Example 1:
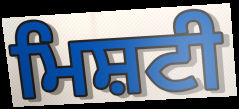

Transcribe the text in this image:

ਮਿਸ਼ਟੀ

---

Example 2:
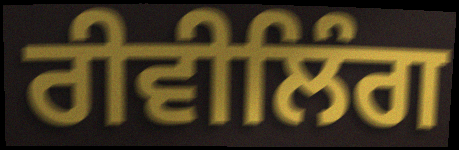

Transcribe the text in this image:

ਰੀਵੀਲਿੰਗ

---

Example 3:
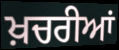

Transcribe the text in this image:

ਖ਼ਚਰੀਆਂ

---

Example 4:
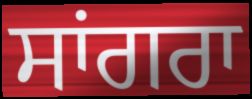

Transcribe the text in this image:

ਸਾਂਗਰਾ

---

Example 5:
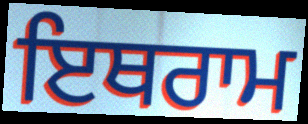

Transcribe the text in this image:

ਇਥਰਾਮ